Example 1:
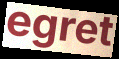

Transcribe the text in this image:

egret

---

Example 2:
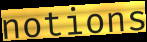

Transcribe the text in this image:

notions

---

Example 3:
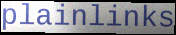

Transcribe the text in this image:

plainlinks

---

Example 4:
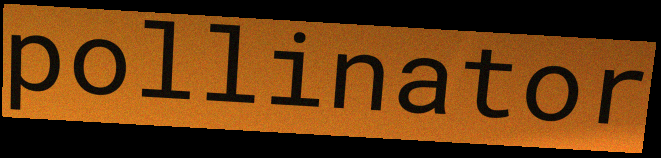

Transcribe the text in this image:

pollinator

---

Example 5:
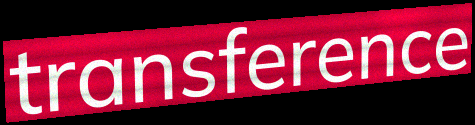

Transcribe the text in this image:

transference